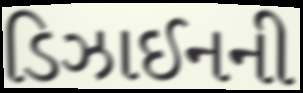
ડિઝાઈનની